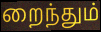
றைந்தும்